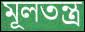
মূলতন্ত্র